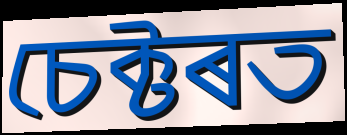
চেক্টৰত